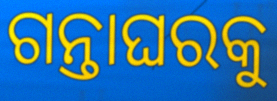
ଗନ୍ତାଘରକୁ